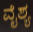
ವೈಶ್ಯ